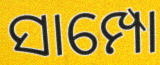
ସାମ୍ପୋ